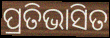
ପ୍ରତିଭାସିତ